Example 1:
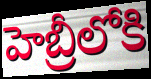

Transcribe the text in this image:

హెబ్రీలోకి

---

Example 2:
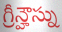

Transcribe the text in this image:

గ్రీన్హౌస్ను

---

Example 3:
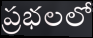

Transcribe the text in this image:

ప్రభలలో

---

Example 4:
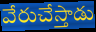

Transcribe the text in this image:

వేరుచేస్తాడు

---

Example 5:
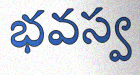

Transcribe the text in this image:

భవస్వ